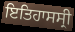
ਇਤਿਹਾਸਸ੍ਰੀ